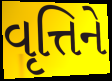
વૃત્તિને